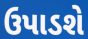
ઉપાડશે